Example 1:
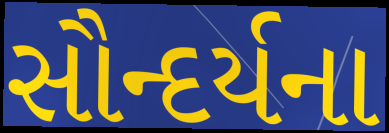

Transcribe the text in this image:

સૌન્દર્યના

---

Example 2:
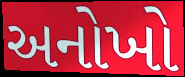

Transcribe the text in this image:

અનોખો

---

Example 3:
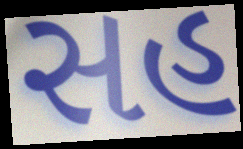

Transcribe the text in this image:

સહ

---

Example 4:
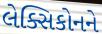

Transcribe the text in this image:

લેક્સિકોનને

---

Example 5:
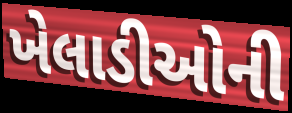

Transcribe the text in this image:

ખેલાડીઓની